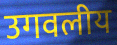
उगवलीय